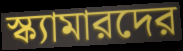
স্ক্যামারদের